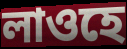
লাওহে